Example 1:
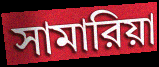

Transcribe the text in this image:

সামারিয়া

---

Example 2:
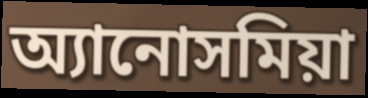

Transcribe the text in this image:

অ্যানোসমিয়া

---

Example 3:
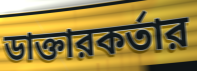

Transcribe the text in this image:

ডাক্তারকর্তার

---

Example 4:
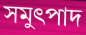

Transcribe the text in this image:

সমুৎপাদ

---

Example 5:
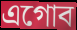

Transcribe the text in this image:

এগোব